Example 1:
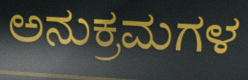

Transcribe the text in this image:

ಅನುಕ್ರಮಗಳ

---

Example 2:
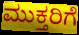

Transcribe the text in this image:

ಮುಕ್ತರಿಗೆ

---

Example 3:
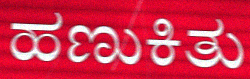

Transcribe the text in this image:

ಹಣುಕಿತು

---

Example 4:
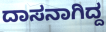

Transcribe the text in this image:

ದಾಸನಾಗಿದ್ದ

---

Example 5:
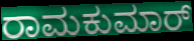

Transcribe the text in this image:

ರಾಮಕುಮಾರ್